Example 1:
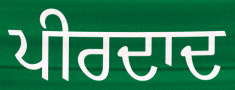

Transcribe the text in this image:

ਪੀਰਦਾਦ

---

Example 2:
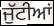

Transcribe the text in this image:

ਜੁੱਟੀਆਂ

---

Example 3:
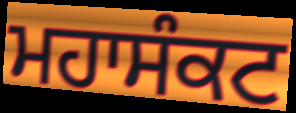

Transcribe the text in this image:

ਮਹਾਸੰਕਟ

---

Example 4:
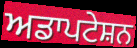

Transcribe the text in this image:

ਅਡਾਪਟੇਸ਼ਨ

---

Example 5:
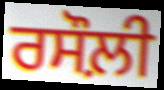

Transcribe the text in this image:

ਰਸੌਲ਼ੀ